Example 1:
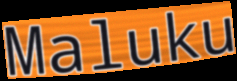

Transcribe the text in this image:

Maluku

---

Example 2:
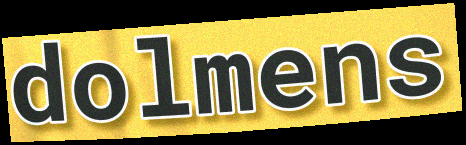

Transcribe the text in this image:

dolmens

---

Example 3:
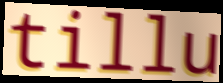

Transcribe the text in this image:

tillu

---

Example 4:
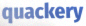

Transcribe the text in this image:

quackery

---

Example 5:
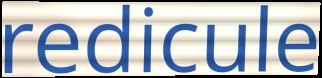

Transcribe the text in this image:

redicule